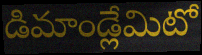
డిమాండ్లేమిటో